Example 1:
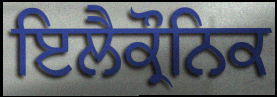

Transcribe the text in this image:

ਇਲੈਕ੍ਰੌਨਿਕ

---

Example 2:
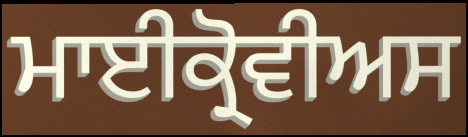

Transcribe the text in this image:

ਮਾਈਕ੍ਰੋਵੀਅਸ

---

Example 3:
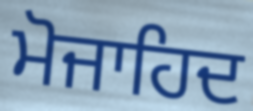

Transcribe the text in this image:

ਮੋਜਾਹਿਦ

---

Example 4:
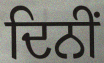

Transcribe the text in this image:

ਦਿਨੀਂ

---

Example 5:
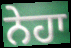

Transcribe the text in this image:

ਨੇਹਾ